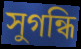
সুগন্ধি